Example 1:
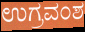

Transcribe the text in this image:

ಉಗ್ರವಂಶ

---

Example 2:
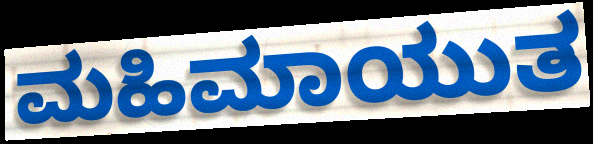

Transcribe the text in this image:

ಮಹಿಮಾಯುತ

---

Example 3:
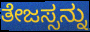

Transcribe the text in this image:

ತೇಜಸ್ಸನ್ನು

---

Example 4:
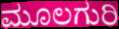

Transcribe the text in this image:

ಮೂಲಗುರಿ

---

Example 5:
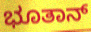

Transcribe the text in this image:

ಭೂತಾನ್